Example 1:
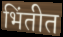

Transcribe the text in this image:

भिंतीत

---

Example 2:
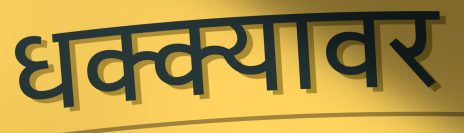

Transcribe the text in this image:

धक्क्यावर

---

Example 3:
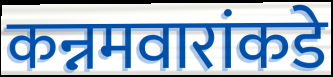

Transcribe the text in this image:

कन्नमवारांकडे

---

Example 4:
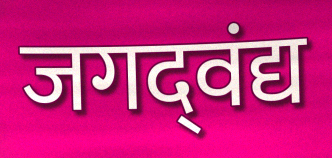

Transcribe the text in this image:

जगद्‌वंद्य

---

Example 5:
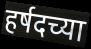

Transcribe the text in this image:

हर्षदच्या